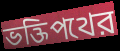
ভক্তিপথের